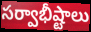
సర్వాభీష్టాలు